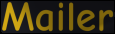
Mailer